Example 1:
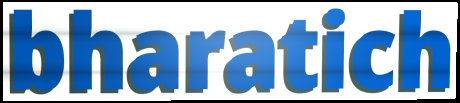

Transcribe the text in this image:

bharatich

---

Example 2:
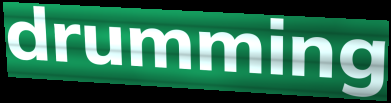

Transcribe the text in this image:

drumming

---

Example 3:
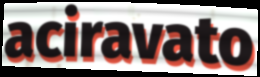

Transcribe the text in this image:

aciravato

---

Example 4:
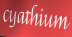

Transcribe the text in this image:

cyathium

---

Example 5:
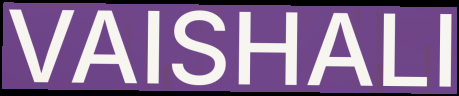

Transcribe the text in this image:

VAISHALI